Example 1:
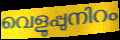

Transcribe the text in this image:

വെളുപ്പുനിറം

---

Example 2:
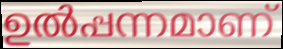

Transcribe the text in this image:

ഉൽപ്പന്നമാണ്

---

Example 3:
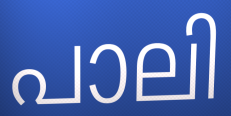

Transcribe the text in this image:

പാലി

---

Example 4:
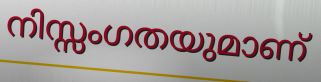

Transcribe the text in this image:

നിസ്സംഗതയുമാണ്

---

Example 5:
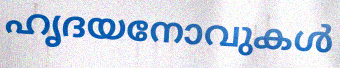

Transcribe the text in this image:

ഹൃദയനോവുകൾ